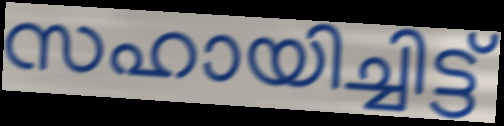
സഹായിച്ചിട്ട്